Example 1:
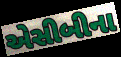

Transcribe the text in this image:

એસીબીના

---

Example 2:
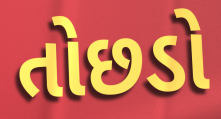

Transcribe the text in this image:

તોછડો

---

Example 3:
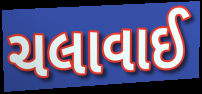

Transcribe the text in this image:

ચલાવાઈ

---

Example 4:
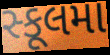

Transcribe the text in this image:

સ્કૂલમા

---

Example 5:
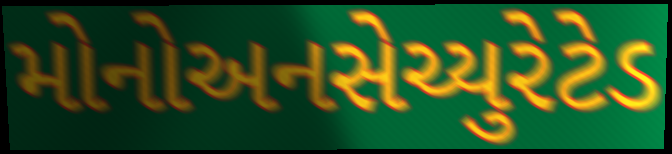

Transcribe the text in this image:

મોનોઅનસેચ્યુરેટેડ